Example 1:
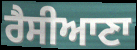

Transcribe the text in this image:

ਰੈਸੀਆਣਾ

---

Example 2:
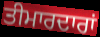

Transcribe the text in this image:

ਤੀਮਾਰਦਾਰਾਂ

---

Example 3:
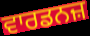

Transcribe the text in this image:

ਵਾਰਡਨਜ਼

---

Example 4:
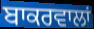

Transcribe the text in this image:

ਬਾਕਰਵਾਲਾਂ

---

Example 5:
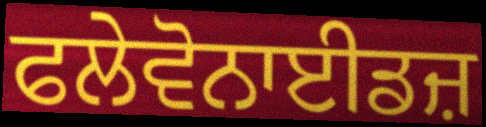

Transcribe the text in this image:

ਫਲੇਵੋਨਾਈਡਜ਼